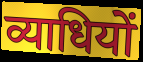
व्याधियों